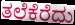
ತಲೆಕೆರೆದು